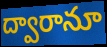
ద్వారానూ